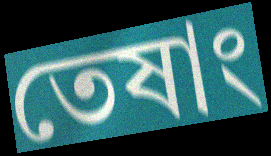
তেষাং